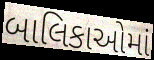
બાલિકાઓમાં